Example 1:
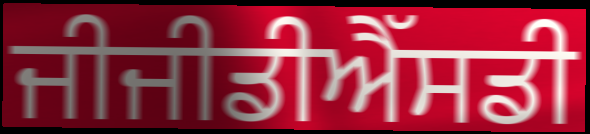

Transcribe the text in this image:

ਜੀਜੀਡੀਐੱਸਡੀ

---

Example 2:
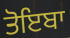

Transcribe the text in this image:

ਤੋਇਬਾ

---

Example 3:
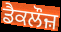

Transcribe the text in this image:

ਡੈਕਲੌਜ਼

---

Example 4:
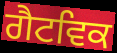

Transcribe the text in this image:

ਗੈਟਵਿਕ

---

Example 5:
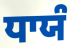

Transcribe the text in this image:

ਧਾਯੰ